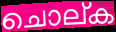
ചൊല്ക